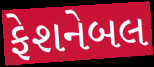
ફેશનેબલ